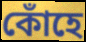
কোঁহে